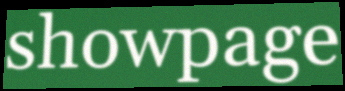
showpage